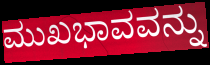
ಮುಖಭಾವವನ್ನು